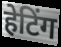
हेटिंग